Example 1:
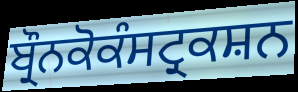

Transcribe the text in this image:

ਬ੍ਰੌਨਕੋਕੰਸਟ੍ਰਕਸ਼ਨ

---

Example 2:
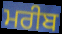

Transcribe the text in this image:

ਮਰੀਬ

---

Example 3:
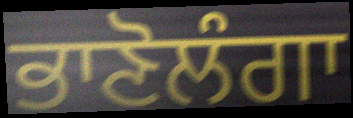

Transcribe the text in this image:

ਭਾਣੋਲੰਗਾ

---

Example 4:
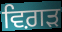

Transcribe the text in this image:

ਵਿਗ਼ੜ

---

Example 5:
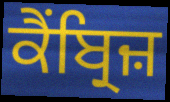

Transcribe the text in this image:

ਕੈਂਬ੍ਰਿਜ਼